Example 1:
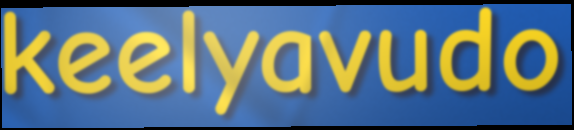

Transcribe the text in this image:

keelyavudo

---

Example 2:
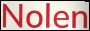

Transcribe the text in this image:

Nolen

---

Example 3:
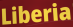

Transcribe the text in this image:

Liberia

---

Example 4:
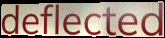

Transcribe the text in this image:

deflected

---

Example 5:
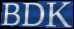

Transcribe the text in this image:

BDK